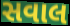
સવાલ